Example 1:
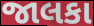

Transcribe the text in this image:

જાલકા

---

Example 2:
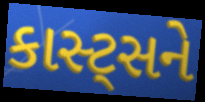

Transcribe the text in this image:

કાસ્ટ્સને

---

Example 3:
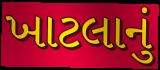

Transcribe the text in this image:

ખાટલાનું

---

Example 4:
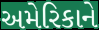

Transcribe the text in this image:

અમેરિકાને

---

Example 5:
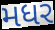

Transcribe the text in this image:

મધર